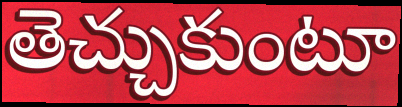
తెచ్చుకుంటూ